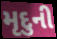
મૃદુની